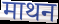
माथन